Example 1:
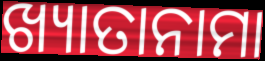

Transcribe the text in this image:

ଖ୍ୟାତାନାମା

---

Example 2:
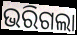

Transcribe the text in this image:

ଭରିଗଲା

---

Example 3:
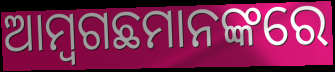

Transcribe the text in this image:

ଆମ୍ବଗଛମାନଙ୍କରେ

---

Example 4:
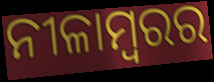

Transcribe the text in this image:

ନୀଳାମ୍ବରର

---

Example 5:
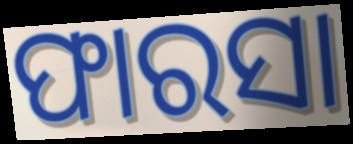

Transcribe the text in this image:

ଫାରସା